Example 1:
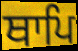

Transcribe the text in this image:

ਥਾਪਿ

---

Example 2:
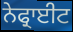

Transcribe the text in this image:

ਨੇਫ੍ਰਾਈਟ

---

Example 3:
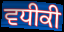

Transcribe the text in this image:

ਵਧੀਕੀ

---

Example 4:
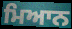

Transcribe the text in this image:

ਮਿਆਨ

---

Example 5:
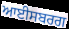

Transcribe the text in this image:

ਆਈਸਬਰਗ